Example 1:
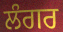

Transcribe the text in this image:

ਲੰਗਰ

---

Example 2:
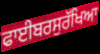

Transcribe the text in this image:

ਫਾਈਬਰਸੁਰੱਖਿਆ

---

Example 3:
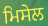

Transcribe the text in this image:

ਮਿਸੇਲ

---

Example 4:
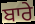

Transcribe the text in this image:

ਬਾਰੇ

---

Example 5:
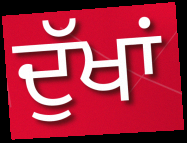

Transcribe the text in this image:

ਦੁੱਖਾਂ